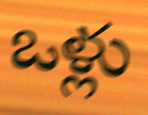
ఒళ్లు